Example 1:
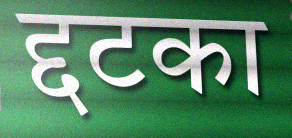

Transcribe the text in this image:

द्दटका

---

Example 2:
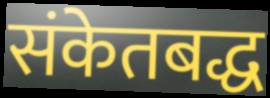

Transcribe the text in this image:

संकेतबद्ध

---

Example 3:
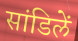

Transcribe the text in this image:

सांडिलें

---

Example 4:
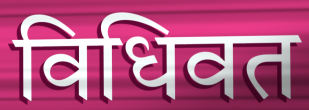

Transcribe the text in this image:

विधिवत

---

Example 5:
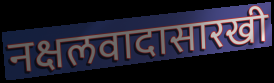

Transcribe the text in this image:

नक्षलवादासारखी